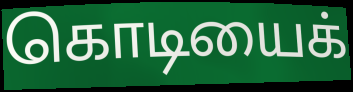
கொடியைக்